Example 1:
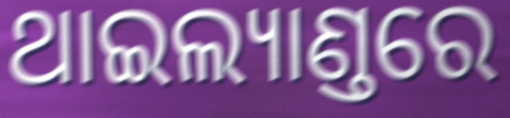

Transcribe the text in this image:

ଥାଇଲ୍ୟାଣ୍ଡରେ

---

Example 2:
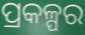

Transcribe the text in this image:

ପ୍ରକଳ୍ପର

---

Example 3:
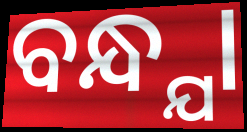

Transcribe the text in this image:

ବନ୍ଧ୍ଯା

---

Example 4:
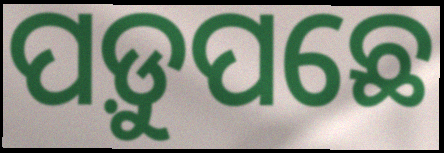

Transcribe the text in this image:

ପଡ଼ୁପଛେ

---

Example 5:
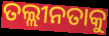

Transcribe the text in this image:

ତଲ୍ଲୀନତାକୁ